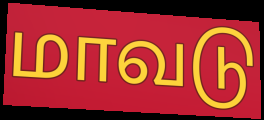
மாவடு